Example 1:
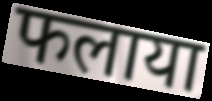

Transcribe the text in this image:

फलाया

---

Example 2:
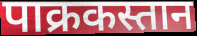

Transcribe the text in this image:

पाक्रकस्तान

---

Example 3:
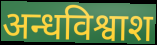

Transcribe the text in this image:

अन्धविश्वाश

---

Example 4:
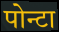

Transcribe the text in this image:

पोन्टा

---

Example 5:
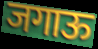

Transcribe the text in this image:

जगाऊ